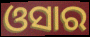
ଓସାର